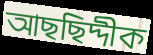
আছছিদ্দীক